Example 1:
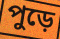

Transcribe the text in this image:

পুড়ে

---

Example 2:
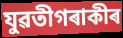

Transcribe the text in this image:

যুৱতীগৰাকীৰ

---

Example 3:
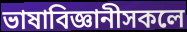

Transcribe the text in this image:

ভাষাবিজ্ঞানীসকলে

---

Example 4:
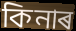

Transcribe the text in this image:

কিনাৰ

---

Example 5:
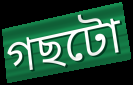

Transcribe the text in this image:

গছটো